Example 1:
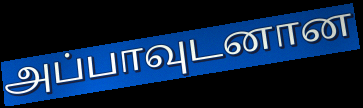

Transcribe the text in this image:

அப்பாவுடனான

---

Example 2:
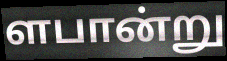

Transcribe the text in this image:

ளபான்று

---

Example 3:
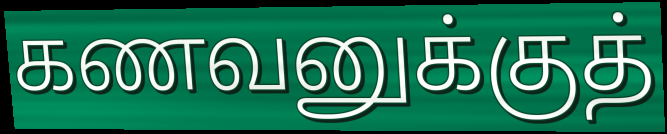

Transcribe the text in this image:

கணவனுக்குத்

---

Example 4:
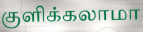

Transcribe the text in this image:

குளிக்கலாமா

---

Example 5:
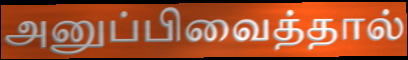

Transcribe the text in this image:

அனுப்பிவைத்தால்